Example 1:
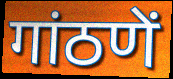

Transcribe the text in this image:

गांठणें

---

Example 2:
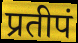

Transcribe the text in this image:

प्रतीपं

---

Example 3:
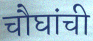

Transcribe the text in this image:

चौघांची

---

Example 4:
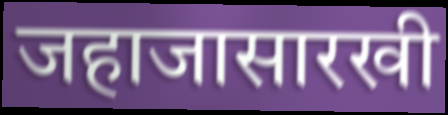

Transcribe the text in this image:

जहाजासारखी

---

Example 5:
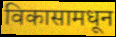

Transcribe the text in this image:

विकासामधून